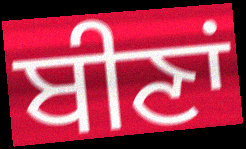
ਬੀਣਾਂ